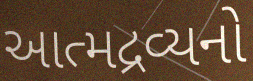
આત્મદ્રવ્યનો